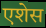
एशेस